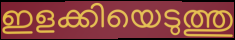
ഇളക്കിയെടുത്തു